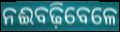
ନଈବଢ଼ିବେଳେ